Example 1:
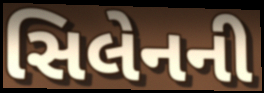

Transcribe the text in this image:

સિલેનની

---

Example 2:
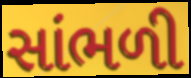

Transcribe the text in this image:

સાંભળી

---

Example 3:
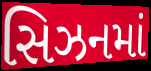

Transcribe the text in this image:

સિઝનમાં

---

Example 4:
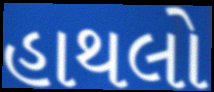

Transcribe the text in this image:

હાથલો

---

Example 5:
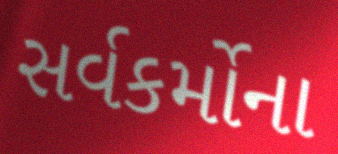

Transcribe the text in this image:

સર્વકર્મોના